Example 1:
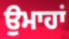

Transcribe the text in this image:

ਉਮਾਹਾਂ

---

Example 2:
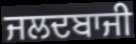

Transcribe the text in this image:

ਜਲਦਬਾਜੀ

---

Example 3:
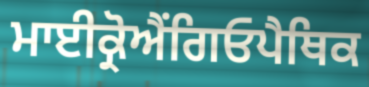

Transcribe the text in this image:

ਮਾਈਕ੍ਰੋਐਂਗਿਓਪੈਥਿਕ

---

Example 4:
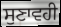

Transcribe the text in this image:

ਸੁਣਾਵਹੀ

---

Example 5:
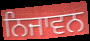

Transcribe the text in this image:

ਨਿਜਾਵਨ